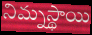
నిమ్నస్థాయి